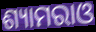
ଶ୍ୟାମରାଓ